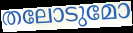
തലോടുമോ